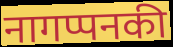
नागप्पनकी